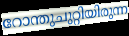
റോന്തുചുറ്റിയിരുന്ന